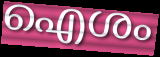
ഐശം